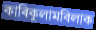
কাৰিকুলামবিলাক